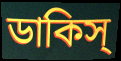
ডাকিস্